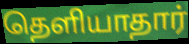
தெளியாதார்